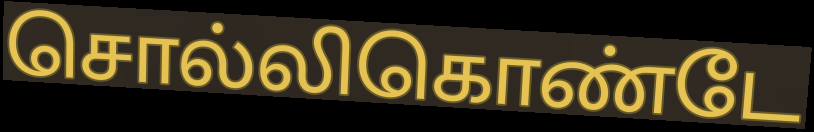
சொல்லிகொண்டே